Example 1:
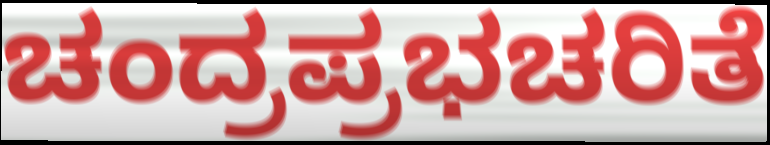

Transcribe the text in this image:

ಚಂದ್ರಪ್ರಭಚರಿತೆ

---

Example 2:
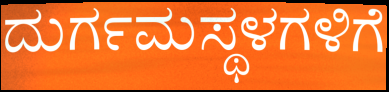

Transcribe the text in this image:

ದುರ್ಗಮಸ್ಥಳಗಳಿಗೆ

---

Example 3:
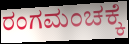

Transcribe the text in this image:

ರಂಗಮಂಚಕ್ಕೆ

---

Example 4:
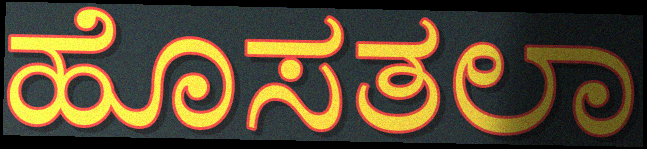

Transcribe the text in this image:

ಹೊಸತಲಾ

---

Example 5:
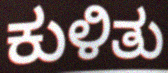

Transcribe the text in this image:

ಕುಳಿತು